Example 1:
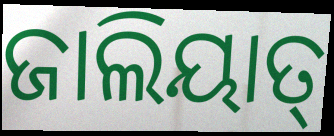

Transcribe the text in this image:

ଜାଲିୟାତ୍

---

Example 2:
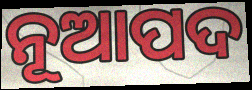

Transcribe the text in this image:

ନୂଆପଦ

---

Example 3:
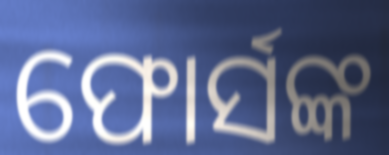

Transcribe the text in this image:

ଫୋର୍ସଙ୍କ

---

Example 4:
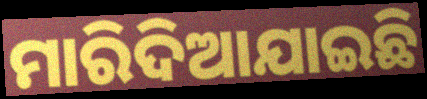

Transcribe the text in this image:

ମାରିଦିଆଯାଇଛି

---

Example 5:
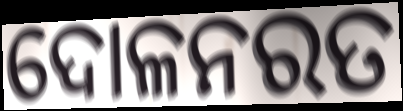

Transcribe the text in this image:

ଦୋଳନରତ